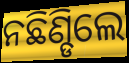
ନଛିଣ୍ଡିଲେ